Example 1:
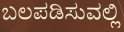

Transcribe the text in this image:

ಬಲಪಡಿಸುವಲ್ಲಿ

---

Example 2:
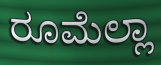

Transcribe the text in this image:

ರೂಮೆಲ್ಲಾ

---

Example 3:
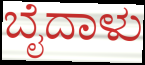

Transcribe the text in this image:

ಬೈದಾಳು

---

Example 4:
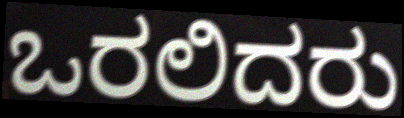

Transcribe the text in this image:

ಒರಲಿದರು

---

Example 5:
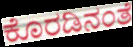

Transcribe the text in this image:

ಕೊರಡಿನಂತೆ